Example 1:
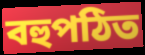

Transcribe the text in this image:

বহুপঠিত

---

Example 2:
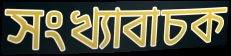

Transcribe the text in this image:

সংখ্যাবাচক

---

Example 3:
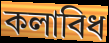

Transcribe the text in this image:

কলাবিধ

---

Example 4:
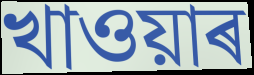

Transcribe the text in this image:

খাওয়াৰ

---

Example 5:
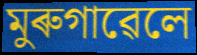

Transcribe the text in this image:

মুৰুগাৱেলে